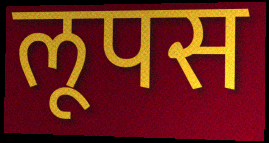
लूपस